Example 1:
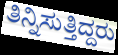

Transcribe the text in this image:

ತಿನ್ನಿಸುತ್ತಿದ್ದರು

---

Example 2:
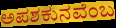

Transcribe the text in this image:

ಅಪಶಕುನವೆಂಬ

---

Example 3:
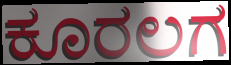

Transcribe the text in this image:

ಕೂರಲಗ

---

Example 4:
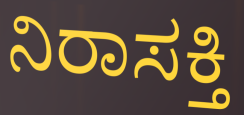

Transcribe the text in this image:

ನಿರಾಸಕ್ತಿ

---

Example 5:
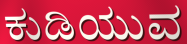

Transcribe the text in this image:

ಕುಡಿಯುವ